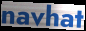
navhat